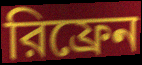
রিফ্রেন